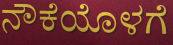
ನೌಕೆಯೊಳಗೆ